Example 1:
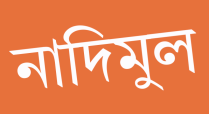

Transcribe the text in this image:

নাদিমুল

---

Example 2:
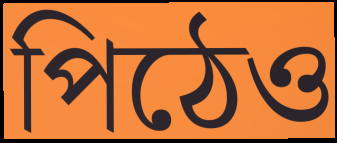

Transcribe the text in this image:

পিঠেও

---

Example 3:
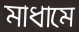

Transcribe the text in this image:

মাধামে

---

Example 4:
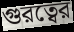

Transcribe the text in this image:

গুরত্বের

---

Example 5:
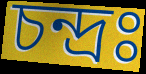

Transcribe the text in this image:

চন্দ্রঃ